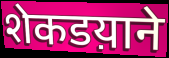
शेकडय़ाने